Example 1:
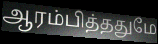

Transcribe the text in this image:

ஆரம்பித்ததுமே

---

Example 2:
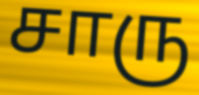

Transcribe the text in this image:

சாரு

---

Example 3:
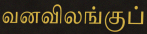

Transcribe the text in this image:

வனவிலங்குப்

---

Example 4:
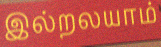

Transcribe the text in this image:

இல்றலயாம்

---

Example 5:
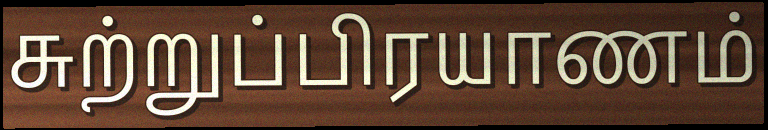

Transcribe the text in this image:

சுற்றுப்பிரயாணம்